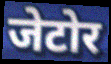
जेटोर